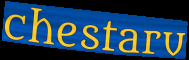
chestaru